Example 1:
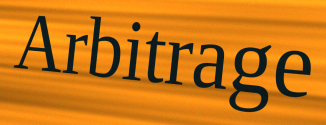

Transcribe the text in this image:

Arbitrage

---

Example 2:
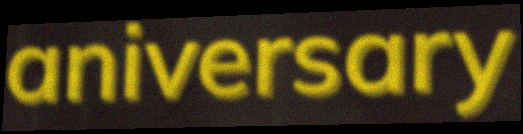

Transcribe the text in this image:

aniversary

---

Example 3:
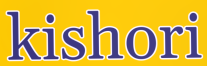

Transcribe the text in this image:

kishori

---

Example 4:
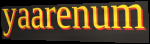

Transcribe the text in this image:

yaarenum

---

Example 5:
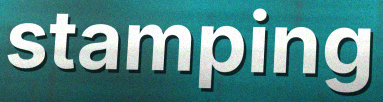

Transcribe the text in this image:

stamping